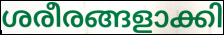
ശരീരങ്ങളാക്കി